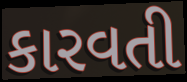
કારવતી